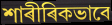
শাৰীৰিকভাবে